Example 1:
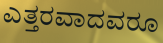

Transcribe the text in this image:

ಎತ್ತರವಾದವರೂ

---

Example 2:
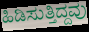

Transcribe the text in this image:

ಹಿಡಿಸುತ್ತಿದ್ದವು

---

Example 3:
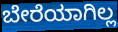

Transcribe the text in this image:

ಬೇರೆಯಾಗಿಲ್ಲ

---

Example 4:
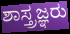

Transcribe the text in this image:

ಶಾಸ್ತ್ರಜ್ಞರು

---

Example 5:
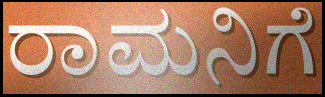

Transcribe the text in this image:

ರಾಮನಿಗೆ